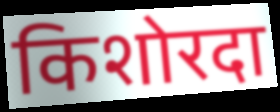
किशोरदा